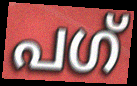
പഗ്